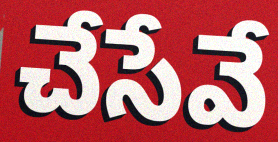
చేసేవే